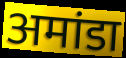
अमांडा